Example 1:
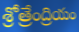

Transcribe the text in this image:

శ్రోత్రేంద్రియం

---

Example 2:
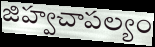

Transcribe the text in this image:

జిహ్వచాపల్యం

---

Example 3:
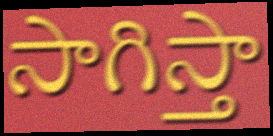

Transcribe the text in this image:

సాగిస్తా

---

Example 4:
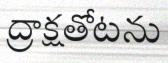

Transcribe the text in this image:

ద్రాక్షతోటను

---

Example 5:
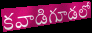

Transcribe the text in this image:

కవాడిగూడలో